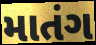
માતંગ